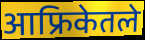
आफ्रिकेतले